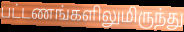
பட்டணங்களிலுமிருந்து